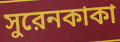
সুরেনকাকা